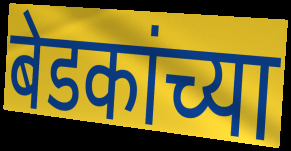
बेडकांच्या